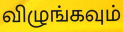
விழுங்கவும்